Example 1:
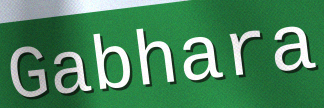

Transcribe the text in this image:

Gabhara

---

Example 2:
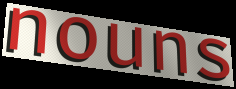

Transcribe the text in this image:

nouns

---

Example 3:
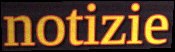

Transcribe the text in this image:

notizie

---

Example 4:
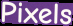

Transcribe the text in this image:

Pixels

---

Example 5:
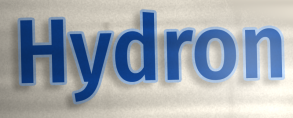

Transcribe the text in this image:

Hydron